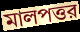
মালপত্তর